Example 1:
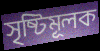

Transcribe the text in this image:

সৃষ্টিমূলক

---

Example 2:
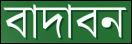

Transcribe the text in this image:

বাদাবন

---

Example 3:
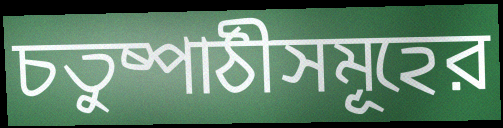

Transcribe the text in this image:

চতুষ্পাঠীসমূহের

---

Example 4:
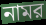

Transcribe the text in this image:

নামর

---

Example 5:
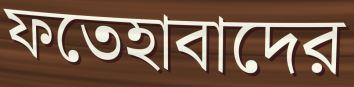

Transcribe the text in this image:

ফতেহাবাদের